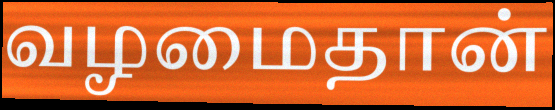
வழமைதான்